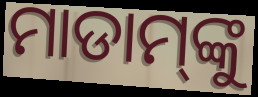
ମାଡାମ୍‌ଙ୍କୁ